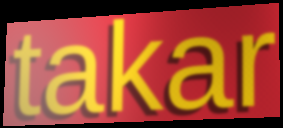
takar